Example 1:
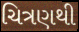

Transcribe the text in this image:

ચિત્રણથી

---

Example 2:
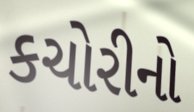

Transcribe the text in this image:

કચોરીનો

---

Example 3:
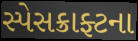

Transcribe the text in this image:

સ્પેસક્રાફ્ટના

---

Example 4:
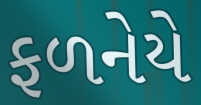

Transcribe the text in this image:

ફળનેયે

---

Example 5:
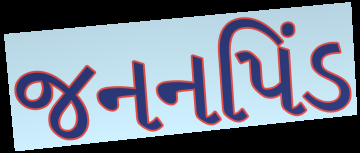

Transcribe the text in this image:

જનનપિંડ